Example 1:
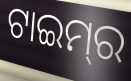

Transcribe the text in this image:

ଟାଇମ୍‌ର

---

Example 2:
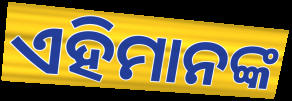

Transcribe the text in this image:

ଏହିମାନଙ୍କ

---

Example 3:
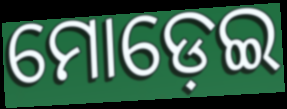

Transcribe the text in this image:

ମୋଡ଼େଇ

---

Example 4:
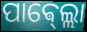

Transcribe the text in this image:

ପାଵ୍ଲ୍ଲୋ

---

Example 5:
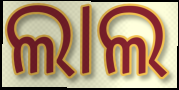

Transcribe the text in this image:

ଲାଲ